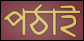
পঠাই